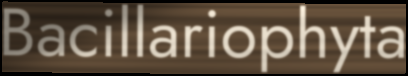
Bacillariophyta